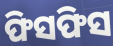
ଫିସଫିସ